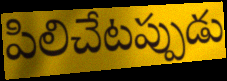
పిలిచేటప్పుడు